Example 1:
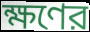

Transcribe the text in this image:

ক্ষণের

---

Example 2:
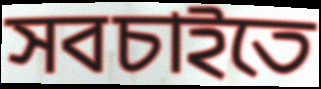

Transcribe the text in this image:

সবচাইতে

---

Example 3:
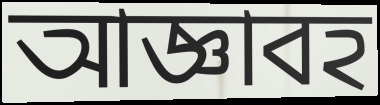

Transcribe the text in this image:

আজ্ঞাবহ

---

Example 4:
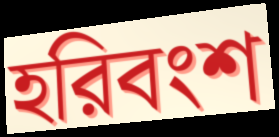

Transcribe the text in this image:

হরিবংশ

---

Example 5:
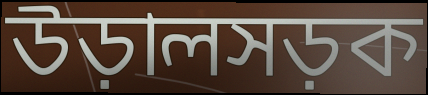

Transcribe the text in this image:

উড়ালসড়ক